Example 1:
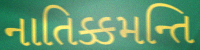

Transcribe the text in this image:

નાતિક્કમન્તિ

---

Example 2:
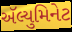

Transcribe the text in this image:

ઍલ્યુમિનેટ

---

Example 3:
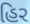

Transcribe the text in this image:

હિર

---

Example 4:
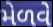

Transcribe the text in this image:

મેળવે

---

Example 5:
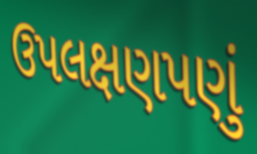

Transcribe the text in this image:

ઉપલક્ષણપણું